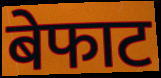
बेफाट